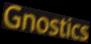
Gnostics